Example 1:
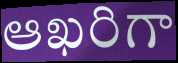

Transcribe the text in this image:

ఆఖరిగా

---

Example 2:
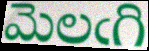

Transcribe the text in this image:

మెలఁగి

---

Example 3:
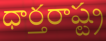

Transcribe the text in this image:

ధార్తరాష్ట్ర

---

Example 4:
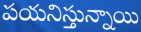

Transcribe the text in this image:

పయనిస్తున్నాయి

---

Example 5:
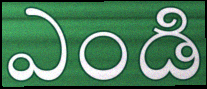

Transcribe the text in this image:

ఎండి